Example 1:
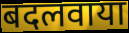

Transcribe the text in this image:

बदलवाया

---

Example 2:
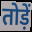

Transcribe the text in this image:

तोड़ें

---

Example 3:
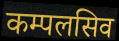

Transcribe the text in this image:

कम्पलसिव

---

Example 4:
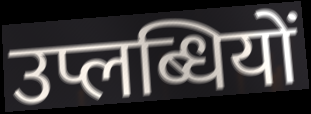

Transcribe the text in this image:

उप्लब्धियों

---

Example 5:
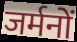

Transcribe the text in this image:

जर्मनों